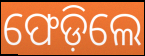
ଫେଡ଼ିଲେ